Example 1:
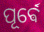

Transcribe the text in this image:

ପୂର୍ଵେ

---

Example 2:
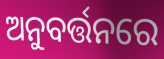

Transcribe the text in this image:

ଅନୁବର୍ତ୍ତନରେ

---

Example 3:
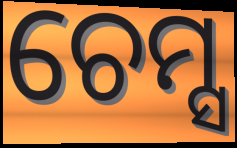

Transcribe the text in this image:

ଚେମ୍ସ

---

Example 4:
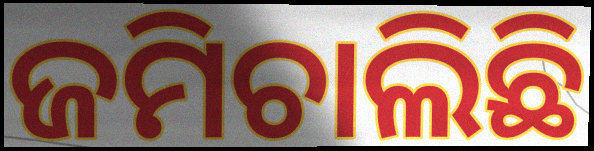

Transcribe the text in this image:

ଜମିଚାଲିଛି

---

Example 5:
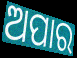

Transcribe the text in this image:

ଅପାର